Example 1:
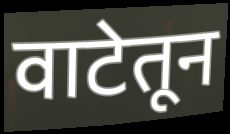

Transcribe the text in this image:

वाटेतून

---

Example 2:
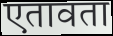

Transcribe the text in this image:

एतावता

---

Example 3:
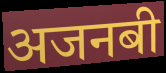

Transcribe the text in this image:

अजनबी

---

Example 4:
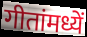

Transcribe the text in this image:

गीतांमध्यें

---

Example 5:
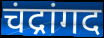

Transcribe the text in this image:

चंद्रांगद